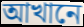
আখানে